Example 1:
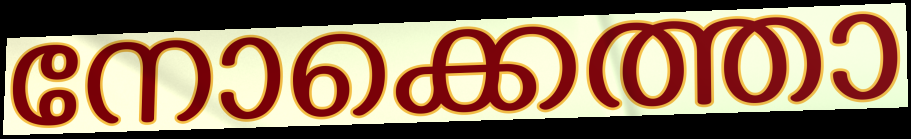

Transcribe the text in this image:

നോക്കെത്താ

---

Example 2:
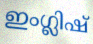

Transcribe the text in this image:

ഇംഗ്ലിഷ്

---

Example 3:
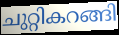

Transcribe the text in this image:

ചുറ്റികറങ്ങി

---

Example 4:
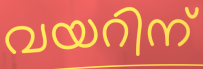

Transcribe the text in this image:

വയറിന്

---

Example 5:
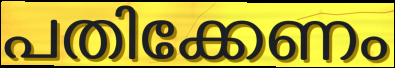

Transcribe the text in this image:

പതിക്കേണം